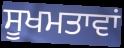
ਸੂਖਮਤਾਵਾਂ